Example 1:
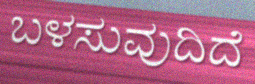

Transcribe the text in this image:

ಬಳಸುವುದಿದೆ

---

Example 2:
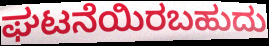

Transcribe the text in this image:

ಘಟನೆಯಿರಬಹುದು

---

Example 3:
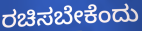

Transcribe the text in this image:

ರಚಿಸಬೇಕೆಂದು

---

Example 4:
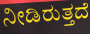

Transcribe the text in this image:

ನೀಡಿರುತ್ತದೆ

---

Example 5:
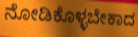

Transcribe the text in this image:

ನೋಡಿಕೊಳ್ಳಬೇಕಾದ